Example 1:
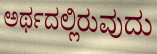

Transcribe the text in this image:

ಅರ್ಥದಲ್ಲಿರುವುದು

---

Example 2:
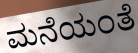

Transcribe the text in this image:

ಮನೆಯಂತೆ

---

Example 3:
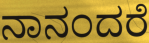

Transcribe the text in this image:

ನಾನಂದರೆ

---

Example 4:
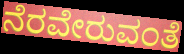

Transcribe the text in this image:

ನೆರವೇರುವಂತೆ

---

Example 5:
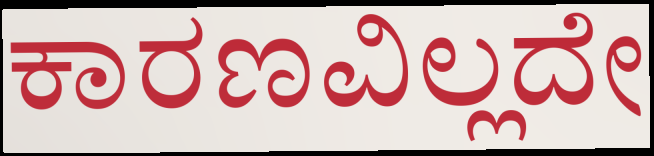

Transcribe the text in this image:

ಕಾರಣವಿಲ್ಲದೇ